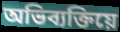
অভিব্যক্তিয়ে